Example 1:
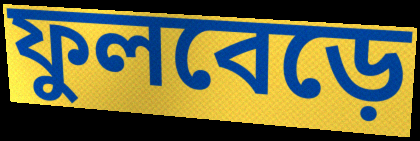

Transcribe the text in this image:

ফুলবেড়ে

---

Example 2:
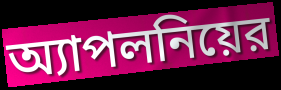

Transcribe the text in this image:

অ্যাপলনিয়ের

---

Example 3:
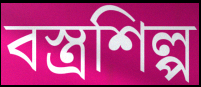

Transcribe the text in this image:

বস্ত্রশিল্প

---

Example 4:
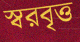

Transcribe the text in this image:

স্বরবৃত্ত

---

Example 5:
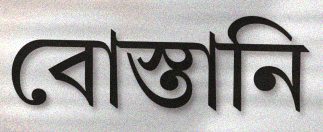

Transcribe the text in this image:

বোস্তানি